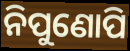
ନିପୁଣୋପି